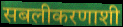
सबलीकरणाशी